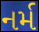
નર્મ